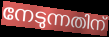
നേടുന്നതിന്